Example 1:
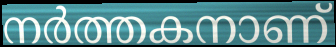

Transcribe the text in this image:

നർത്തകനാണ്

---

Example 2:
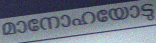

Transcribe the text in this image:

മാനോഹയോടു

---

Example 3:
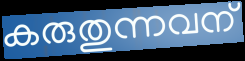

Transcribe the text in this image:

കരുതുന്നവന്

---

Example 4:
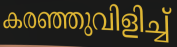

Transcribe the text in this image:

കരഞ്ഞുവിളിച്ച്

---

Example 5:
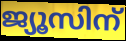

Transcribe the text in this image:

ജ്യൂസിന്